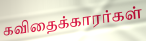
கவிதைக்காரர்கள்